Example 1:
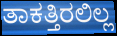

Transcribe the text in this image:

ತಾಕತ್ತಿರಲಿಲ್ಲ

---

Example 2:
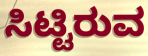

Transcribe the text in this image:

ಸಿಟ್ಟಿರುವ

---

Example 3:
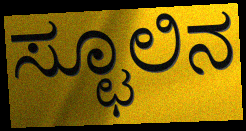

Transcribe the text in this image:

ಸ್ಟೂಲಿನ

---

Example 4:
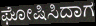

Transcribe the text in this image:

ಘೋಷಿಸಿದಾಗ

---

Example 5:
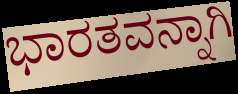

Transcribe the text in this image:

ಭಾರತವನ್ನಾಗಿ